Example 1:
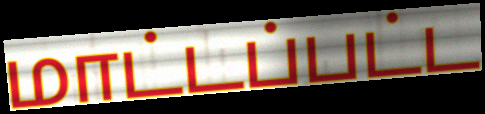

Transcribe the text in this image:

மாட்டப்பட்ட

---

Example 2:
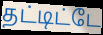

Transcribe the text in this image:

தட்டிட்டே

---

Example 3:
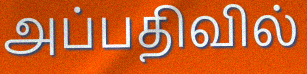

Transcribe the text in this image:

அப்பதிவில்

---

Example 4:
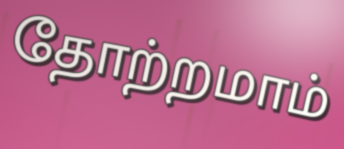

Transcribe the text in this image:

தோற்றமாம்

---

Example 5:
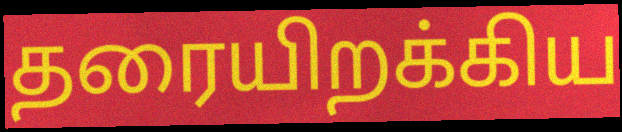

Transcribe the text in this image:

தரையிறக்கிய